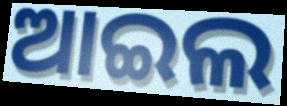
ଆଇଲ